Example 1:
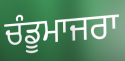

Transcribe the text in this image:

ਚੰਡੂਮਾਜਰਾ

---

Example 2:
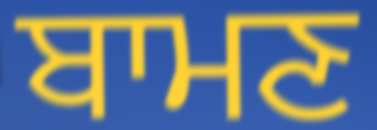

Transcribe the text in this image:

ਬਾਮਣ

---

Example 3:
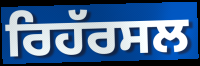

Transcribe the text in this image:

ਰਿਹੱਰਸਲ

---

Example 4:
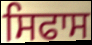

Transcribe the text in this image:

ਸਿਫਾਸ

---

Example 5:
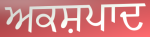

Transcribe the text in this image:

ਅਕਸ਼ਪਾਦ